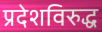
प्रदेशविरुद्ध